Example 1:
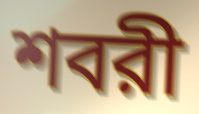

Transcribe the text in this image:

শবরী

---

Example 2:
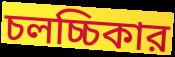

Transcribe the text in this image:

চলচ্চিকার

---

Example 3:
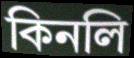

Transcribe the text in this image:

কিনলি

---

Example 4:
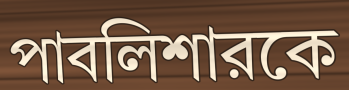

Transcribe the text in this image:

পাবলিশারকে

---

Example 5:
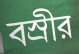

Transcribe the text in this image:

বস্রীর